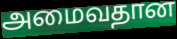
அமைவதான